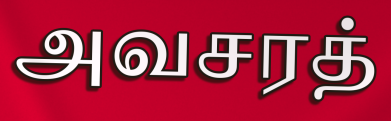
அவசரத்